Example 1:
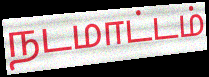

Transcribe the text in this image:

நடமாட்டம்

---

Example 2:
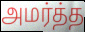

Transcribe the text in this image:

அமர்த்த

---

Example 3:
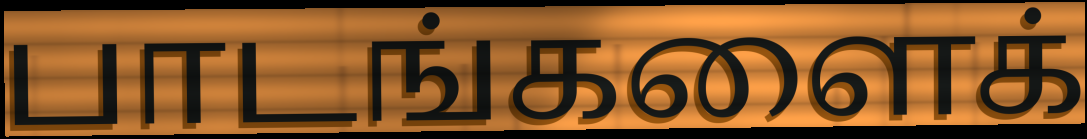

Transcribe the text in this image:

பாடங்களைக்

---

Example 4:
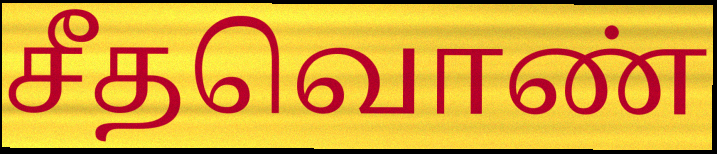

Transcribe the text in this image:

சீதவொண்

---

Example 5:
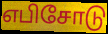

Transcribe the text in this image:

எபிசோடு